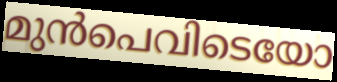
മുൻപെവിടെയോ